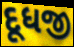
દૂધજી